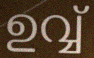
ഉവ്വ്